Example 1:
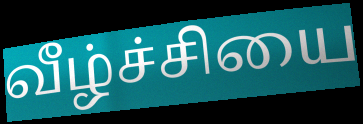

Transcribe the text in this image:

வீழ்ச்சியை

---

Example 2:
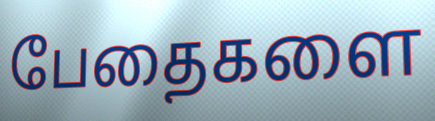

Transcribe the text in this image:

பேதைகளை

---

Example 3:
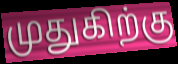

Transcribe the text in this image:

முதுகிற்கு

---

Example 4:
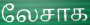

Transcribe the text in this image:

லேசாக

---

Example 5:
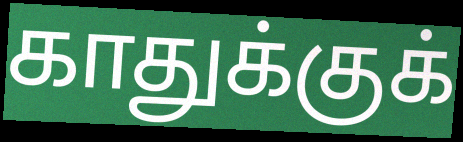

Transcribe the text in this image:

காதுக்குக்